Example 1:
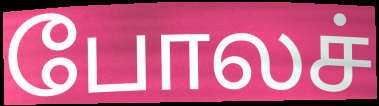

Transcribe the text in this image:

போலச்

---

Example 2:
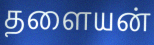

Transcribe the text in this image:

தளையன்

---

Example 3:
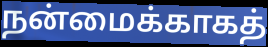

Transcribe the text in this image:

நன்மைக்காகத்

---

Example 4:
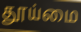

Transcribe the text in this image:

தூய்மை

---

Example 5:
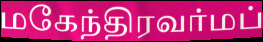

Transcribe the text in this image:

மகேந்திரவர்மப்